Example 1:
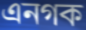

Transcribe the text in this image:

এনগক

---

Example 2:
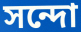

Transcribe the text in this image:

সন্দো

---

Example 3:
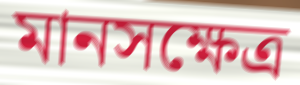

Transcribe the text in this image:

মানসক্ষেত্র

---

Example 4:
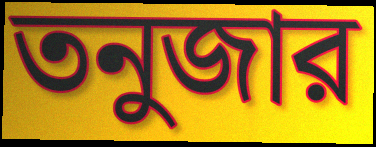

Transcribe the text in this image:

তনুজার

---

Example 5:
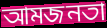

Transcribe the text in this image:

আমজনতা